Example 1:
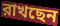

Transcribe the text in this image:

রাখছেন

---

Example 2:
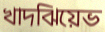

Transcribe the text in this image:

খাদঝিয়েভ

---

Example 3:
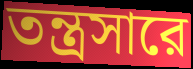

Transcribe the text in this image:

তন্ত্রসারে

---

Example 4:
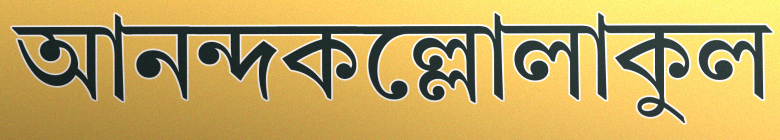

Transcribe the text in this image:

আনন্দকল্লোলাকুল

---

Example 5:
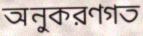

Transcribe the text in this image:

অনুকরণগত